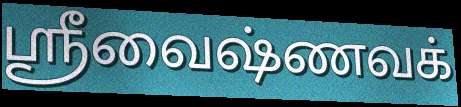
ஸ்ரீவைஷ்ணவக்